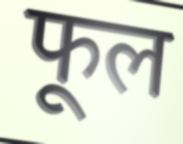
फूल